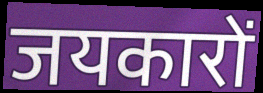
जयकारों